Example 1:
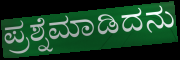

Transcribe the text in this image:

ಪ್ರಶ್ನೆಮಾಡಿದನು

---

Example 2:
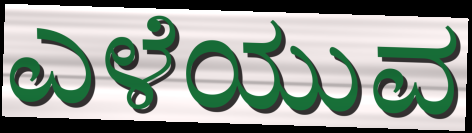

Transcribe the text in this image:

ಎಳೆಯುವ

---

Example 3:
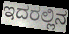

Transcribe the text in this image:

ಇದರಲ್ಲಿನ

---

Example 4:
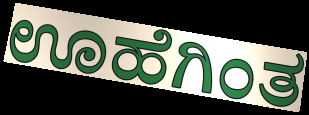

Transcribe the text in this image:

ಊಹೆಗಿಂತ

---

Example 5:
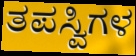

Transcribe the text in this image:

ತಪಸ್ವಿಗಳ